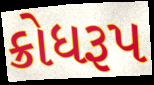
ક્રોધરૂપ